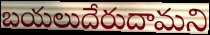
బయలుదేరుదామని